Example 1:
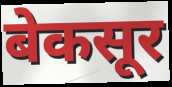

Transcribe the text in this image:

बेकसूर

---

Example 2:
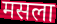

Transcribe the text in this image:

मसला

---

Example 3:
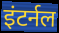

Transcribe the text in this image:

इंटर्नल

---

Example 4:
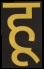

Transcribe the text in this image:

हू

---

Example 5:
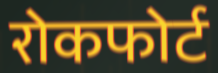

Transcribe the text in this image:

रोकफोर्ट